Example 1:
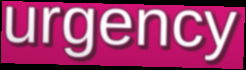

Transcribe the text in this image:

urgency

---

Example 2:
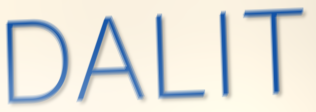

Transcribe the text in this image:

DALIT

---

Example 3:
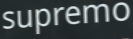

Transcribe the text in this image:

supremo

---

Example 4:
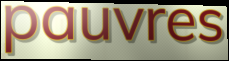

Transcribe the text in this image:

pauvres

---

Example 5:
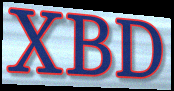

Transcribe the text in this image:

XBD